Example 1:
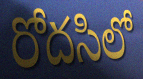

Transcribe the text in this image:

రోదసిలో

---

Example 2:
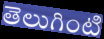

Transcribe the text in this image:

తెలుగింటి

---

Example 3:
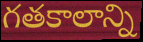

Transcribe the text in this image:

గతకాలాన్ని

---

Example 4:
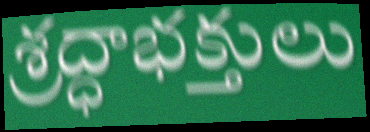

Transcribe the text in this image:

శ్రద్ధాభక్తులు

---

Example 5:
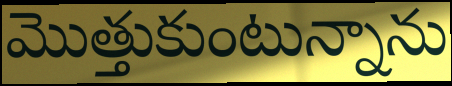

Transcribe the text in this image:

మొత్తుకుంటున్నాను